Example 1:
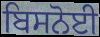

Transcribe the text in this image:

ਬਿਸਨੋਈ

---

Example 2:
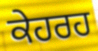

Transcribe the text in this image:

ਕੇਹਰਹ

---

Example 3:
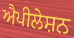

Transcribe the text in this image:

ਐਪੀਲੇਸ਼ਨ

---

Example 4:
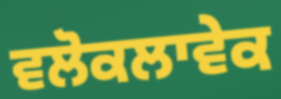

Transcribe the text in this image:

ਵਲੋਕਲਾਵੇਕ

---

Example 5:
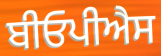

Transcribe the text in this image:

ਬੀਓਪੀਐਸ